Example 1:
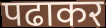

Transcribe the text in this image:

पढाकर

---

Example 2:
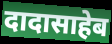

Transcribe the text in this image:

दादासाहेब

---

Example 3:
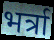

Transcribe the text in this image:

भर्त्रा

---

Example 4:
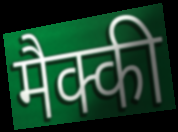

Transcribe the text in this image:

मैक्की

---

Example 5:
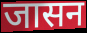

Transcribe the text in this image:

जासन